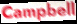
Campbell